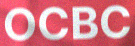
OCBC